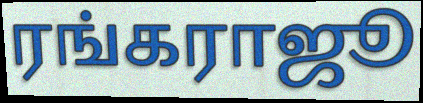
ரங்கராஜூ